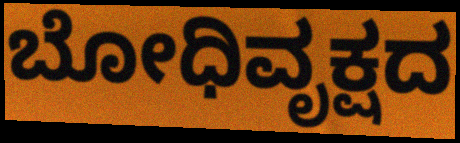
ಬೋಧಿವೃಕ್ಷದ